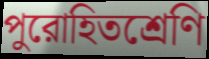
পুরোহিতশ্রেণি